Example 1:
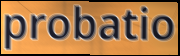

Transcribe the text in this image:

probatio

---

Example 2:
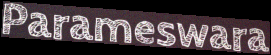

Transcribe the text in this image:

Parameswara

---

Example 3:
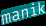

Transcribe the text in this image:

manik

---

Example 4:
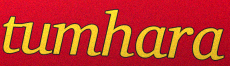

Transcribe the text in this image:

tumhara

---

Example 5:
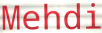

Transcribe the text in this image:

Mehdi